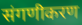
संगणीकरण